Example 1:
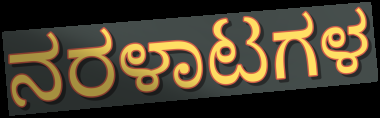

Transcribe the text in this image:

ನರಳಾಟಗಳ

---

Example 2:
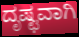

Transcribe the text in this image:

ದೃಷ್ಟವಾಗಿ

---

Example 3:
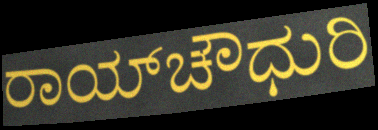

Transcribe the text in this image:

ರಾಯ್‌ಚೌಧುರಿ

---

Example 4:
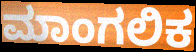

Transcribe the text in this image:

ಮಾಂಗಲಿಕ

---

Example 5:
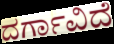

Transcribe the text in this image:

ದರ್ಗಾವಿದೆ